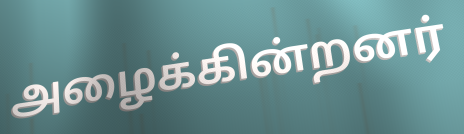
அழைக்கின்றனர்